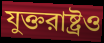
যুক্তরাষ্ট্রও